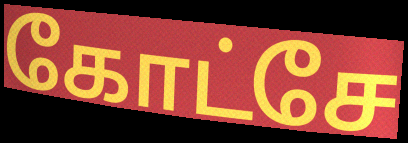
கோட்சே